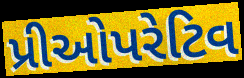
પ્રીઓપરેટિવ